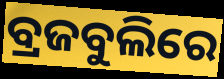
ବ୍ରଜବୁଲିରେ